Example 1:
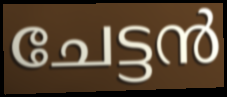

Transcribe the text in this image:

ചേട്ടൻ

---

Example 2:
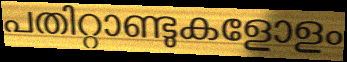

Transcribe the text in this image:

പതിറ്റാണ്ടുകളോളം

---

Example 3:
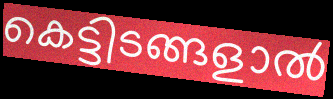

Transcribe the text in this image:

കെട്ടിടങ്ങളാൽ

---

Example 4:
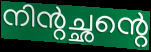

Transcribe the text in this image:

നിന്റച്ഛന്റെ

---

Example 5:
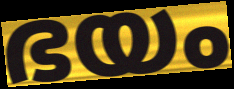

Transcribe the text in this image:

ഭയം